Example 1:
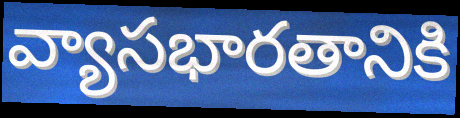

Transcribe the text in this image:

వ్యాసభారతానికి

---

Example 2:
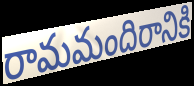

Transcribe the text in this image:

రామమందిరానికి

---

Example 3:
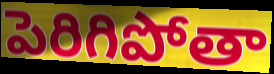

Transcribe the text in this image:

పెరిగిపోతా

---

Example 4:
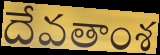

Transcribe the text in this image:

దేవతాంశ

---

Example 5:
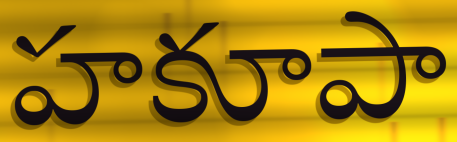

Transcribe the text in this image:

హకూపా